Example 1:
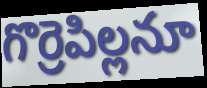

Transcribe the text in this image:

గొర్రెపిల్లనూ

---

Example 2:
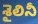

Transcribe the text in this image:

శైలినీ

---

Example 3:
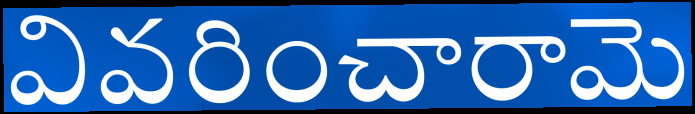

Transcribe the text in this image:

వివరించారామె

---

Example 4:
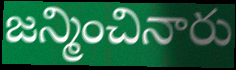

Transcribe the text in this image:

జన్మించినారు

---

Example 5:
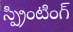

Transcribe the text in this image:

స్ప్రింటింగ్